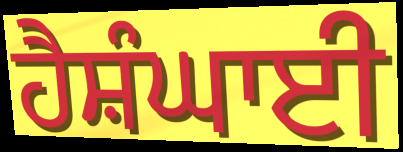
ਹੈਸ਼ੰਘਾਈ